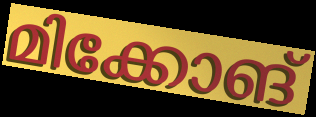
മിക്കോങ്